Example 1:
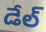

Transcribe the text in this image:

డేల్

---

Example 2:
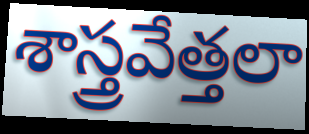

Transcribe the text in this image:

శాస్త్రవేత్తలా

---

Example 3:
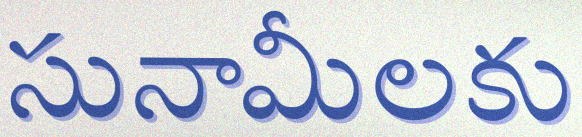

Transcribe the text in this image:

సునామీలకు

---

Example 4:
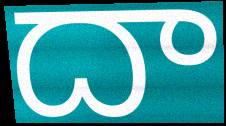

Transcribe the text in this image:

దా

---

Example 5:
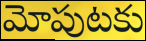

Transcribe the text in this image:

మోపుటకు